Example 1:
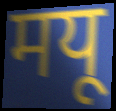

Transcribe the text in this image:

मयू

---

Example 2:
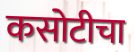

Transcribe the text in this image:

कसोटीचा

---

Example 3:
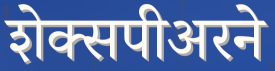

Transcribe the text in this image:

शेक्सपीअरने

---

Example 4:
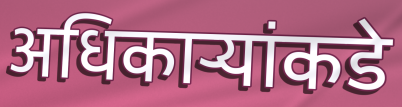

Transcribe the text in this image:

अधिकार्‍यांकडे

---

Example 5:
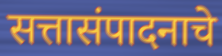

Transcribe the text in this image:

सत्तासंपादनाचे